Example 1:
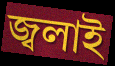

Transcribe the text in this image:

জ্বলাই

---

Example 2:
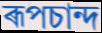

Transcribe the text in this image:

ৰূপচান্দ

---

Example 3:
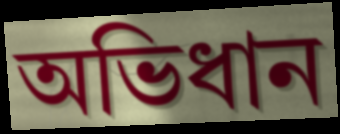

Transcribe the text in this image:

অভিধান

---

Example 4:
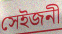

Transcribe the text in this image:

সেইজনী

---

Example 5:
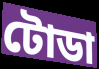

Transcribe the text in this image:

টোডা